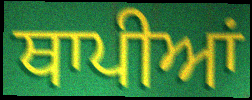
ਥਾਪੀਆਂ